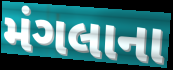
મંગલાના